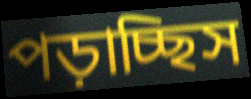
পড়াচ্ছিস